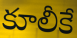
కూలీకే